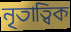
নৃতাত্বিক